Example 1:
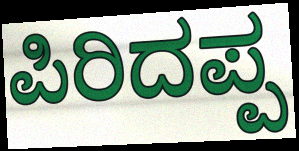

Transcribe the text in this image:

ಪಿರಿದಪ್ಪ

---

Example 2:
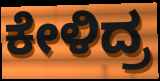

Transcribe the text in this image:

ಕೇಳಿದ್ರ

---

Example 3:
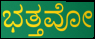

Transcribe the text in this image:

ಭತ್ತವೋ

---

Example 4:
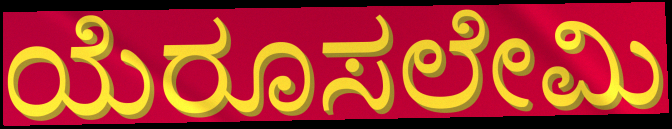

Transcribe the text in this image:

ಯೆರೂಸಲೇಮಿ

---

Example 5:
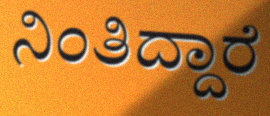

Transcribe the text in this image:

ನಿಂತಿದ್ದಾರೆ